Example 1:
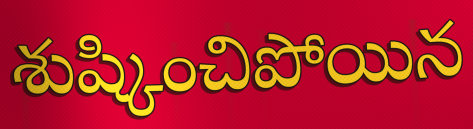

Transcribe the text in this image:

శుష్కించిపోయిన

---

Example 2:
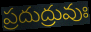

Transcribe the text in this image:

ప్రదుద్రువుః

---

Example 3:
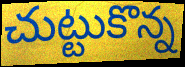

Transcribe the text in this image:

చుట్టుకొన్న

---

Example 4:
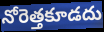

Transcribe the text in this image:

నోరెత్తకూడదు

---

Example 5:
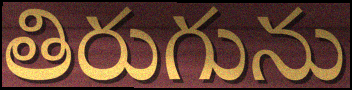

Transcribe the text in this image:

తిరుగును